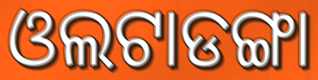
ଓଲଟାଡଙ୍ଗା